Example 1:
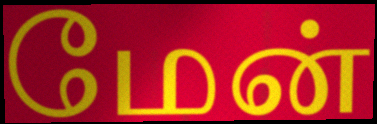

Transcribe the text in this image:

மேன்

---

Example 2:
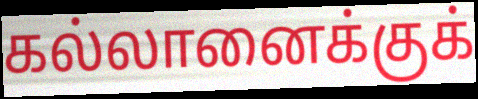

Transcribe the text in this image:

கல்லானைக்குக்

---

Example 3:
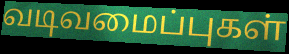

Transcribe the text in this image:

வடிவமைப்புகள்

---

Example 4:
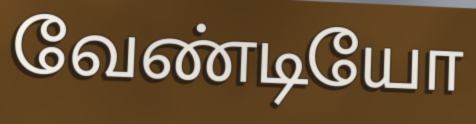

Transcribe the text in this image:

வேண்டியோ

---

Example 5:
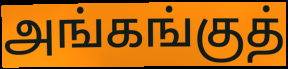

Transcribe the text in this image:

அங்கங்குத்